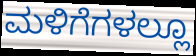
ಮಳಿಗೆಗಳಲ್ಲೂ